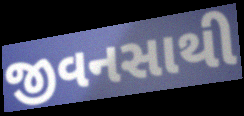
જીવનસાથી